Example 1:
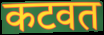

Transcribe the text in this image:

कटवत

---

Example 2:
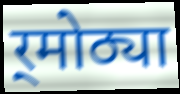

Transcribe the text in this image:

र्मोठ्या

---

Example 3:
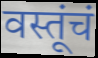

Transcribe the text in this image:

वस्तूंचं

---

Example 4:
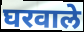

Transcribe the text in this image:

घरवाले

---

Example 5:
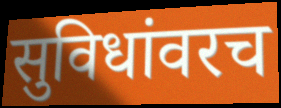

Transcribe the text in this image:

सुविधांवरच